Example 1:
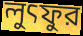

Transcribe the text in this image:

লুৎফুর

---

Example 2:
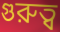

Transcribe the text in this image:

গুরুত্ব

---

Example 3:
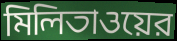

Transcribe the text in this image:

মিলিতাওয়ের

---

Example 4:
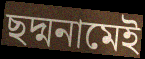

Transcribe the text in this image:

ছদ্মনামেই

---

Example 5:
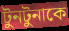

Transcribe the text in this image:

টুনটুনাকে